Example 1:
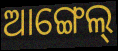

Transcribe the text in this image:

ଆଙ୍ଗେଲ୍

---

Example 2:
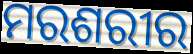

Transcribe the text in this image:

ମରଶରୀର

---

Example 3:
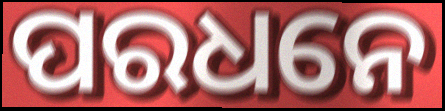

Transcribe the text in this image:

ପରଧନେ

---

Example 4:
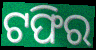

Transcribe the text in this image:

ଟଫିର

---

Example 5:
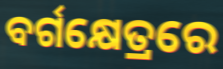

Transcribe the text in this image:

ବର୍ଗକ୍ଷେତ୍ରରେ